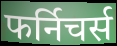
फर्निचर्स